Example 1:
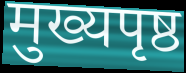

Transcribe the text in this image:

मुख्यपृष्ठ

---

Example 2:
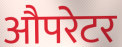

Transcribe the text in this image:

औपरेटर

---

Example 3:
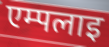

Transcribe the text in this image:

एम्पलाइ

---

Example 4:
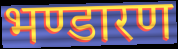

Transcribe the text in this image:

भण्डारण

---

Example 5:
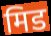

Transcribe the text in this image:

मिड